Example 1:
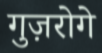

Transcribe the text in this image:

गुज़रोगे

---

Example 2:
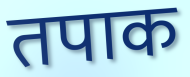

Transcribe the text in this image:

तपाक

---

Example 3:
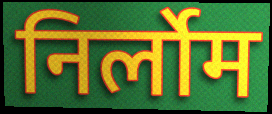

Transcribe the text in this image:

निर्लोम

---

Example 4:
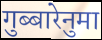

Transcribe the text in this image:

गुब्बारेनुमा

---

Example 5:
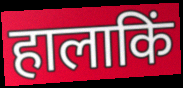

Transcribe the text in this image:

हालाकिं